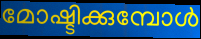
മോഷ്ടിക്കുമ്പോൾ